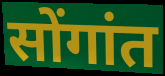
सोंगांत